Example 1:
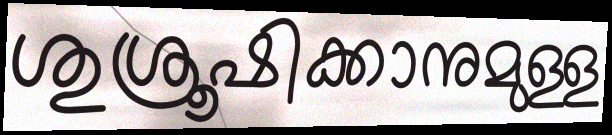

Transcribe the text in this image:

ശുശ്രൂഷിക്കാനുമുള്ള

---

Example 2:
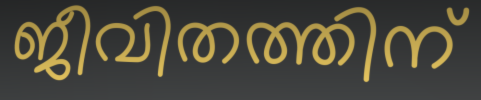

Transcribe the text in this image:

ജീവിതത്തിന്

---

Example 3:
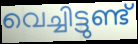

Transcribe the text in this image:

വെച്ചിട്ടുണ്ട്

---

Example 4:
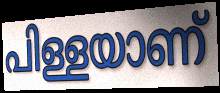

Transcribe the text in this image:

പിള്ളയാണ്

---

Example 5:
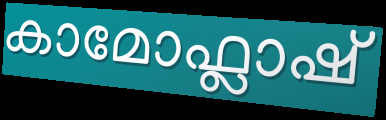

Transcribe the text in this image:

കാമോഫ്ലാഷ്